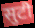
सुटी